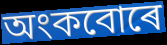
অংকবোৰে